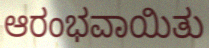
ಆರಂಭವಾಯಿತು